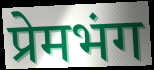
प्रेमभंग